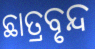
ଛାତ୍ରବୃନ୍ଦ